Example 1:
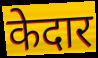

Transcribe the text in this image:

केदार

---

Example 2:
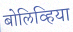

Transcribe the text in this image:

बोलिव्हिया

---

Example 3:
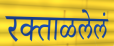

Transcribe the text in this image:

रक्ताळलेलं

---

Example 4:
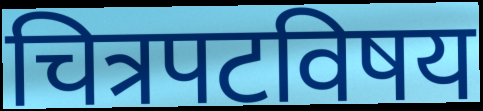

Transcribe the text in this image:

चित्रपटविषय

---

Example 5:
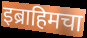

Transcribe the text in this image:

इब्राहिमचा